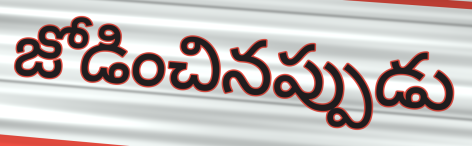
జోడించినప్పుడు